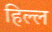
हिल्ल